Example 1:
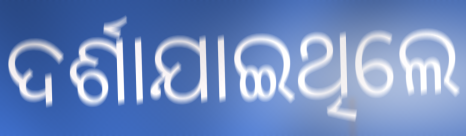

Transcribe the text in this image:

ଦର୍ଶାଯାଇଥିଲେ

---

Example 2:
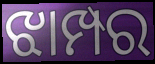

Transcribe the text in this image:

ଝାମ୍ପର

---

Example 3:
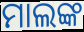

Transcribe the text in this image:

ମାଲଙ୍କ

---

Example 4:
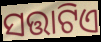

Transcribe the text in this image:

ସତ୍ତାଟିଏ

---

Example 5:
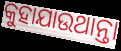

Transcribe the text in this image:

କୁହାଯାଉଥାନ୍ତା